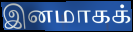
இனமாகக்